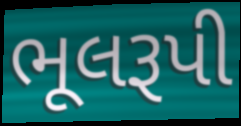
ભૂલરૂપી